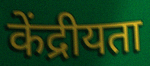
केंद्रीयता